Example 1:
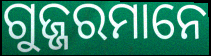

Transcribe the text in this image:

ଗୁଜ୍ଜରମାନେ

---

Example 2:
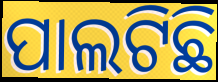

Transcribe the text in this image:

ପାଲଟିଛି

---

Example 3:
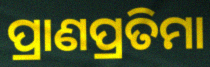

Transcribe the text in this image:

ପ୍ରାଣପ୍ରତିମା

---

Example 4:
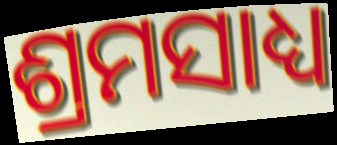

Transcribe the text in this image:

ଶ୍ରମସାଧ୍ୟ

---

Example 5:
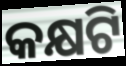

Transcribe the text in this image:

କକ୍ଷଟି